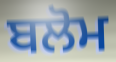
ਬਲੋਮ